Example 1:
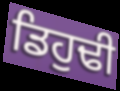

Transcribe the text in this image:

ਡਿਹੁਢੀ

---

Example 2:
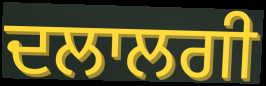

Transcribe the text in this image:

ਦਲਾਲਗੀ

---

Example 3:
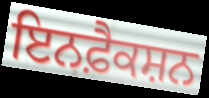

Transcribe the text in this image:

ਇਨਫ਼ੈਕਸ਼ਨ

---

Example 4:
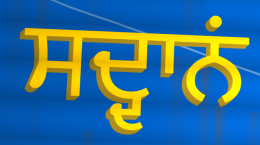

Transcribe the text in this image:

ਸਦ੍ਦਾਨਂ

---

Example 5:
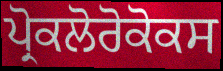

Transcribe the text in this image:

ਪ੍ਰੋਕਲੋਰੋਕੋਕਸ